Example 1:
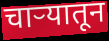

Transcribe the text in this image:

चाऱ्यातून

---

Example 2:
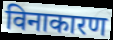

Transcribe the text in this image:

विनाकारण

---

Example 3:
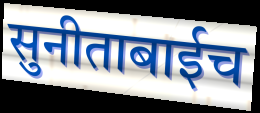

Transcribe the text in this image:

सुनीताबाईच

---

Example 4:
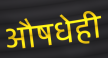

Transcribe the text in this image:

औषधेही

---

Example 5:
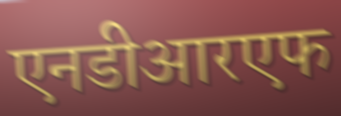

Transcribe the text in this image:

एनडीआरएफ